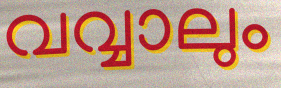
വവ്വാലും